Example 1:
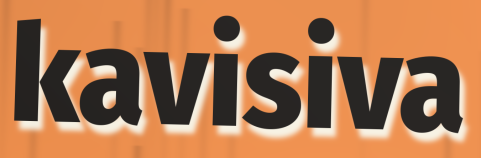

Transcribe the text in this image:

kavisiva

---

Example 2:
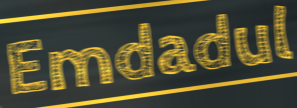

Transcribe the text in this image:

Emdadul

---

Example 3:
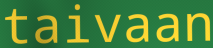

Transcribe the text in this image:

taivaan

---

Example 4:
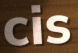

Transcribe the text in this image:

cis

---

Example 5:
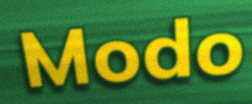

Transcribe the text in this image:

Modo